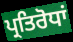
ਪ੍ਰਤਿਰੋਧਾਂ